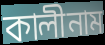
কালীনাম